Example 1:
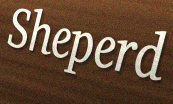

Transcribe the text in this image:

Sheperd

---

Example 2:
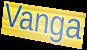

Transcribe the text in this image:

Vanga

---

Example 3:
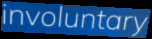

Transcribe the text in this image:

involuntary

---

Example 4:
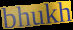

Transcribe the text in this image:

bhukh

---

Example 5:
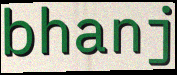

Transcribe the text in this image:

bhanj